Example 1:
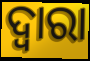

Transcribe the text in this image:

ଦ୍ଵାରା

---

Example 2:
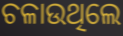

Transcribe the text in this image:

ଚଳାଉଥିଲେ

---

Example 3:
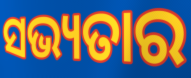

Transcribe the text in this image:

ସଭ୍ୟତାର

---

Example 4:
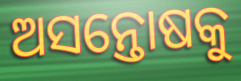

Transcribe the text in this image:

ଅସନ୍ତୋଷକୁ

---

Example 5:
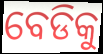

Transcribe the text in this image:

ବେଡିକୁ